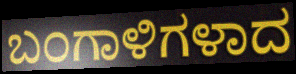
ಬಂಗಾಳಿಗಳಾದ